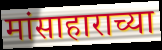
मांसाहाराच्या